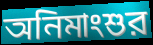
অনিমাংশুর